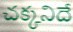
చక్కనిదే